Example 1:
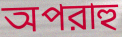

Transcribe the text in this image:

অপরাহু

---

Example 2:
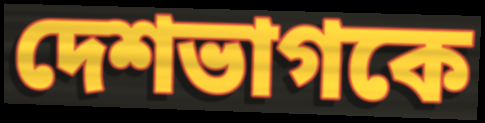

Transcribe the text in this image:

দেশভাগকে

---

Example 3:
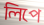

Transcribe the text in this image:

লিপে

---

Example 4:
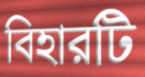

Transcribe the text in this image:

বিহারটি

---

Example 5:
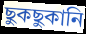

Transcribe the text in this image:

ছুকছুকানি